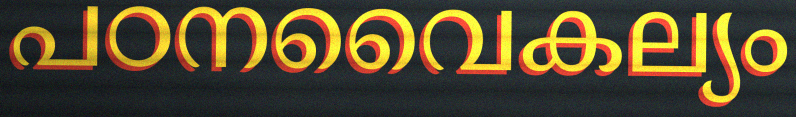
പഠനവൈകല്യം